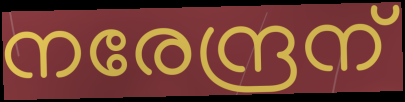
നരേന്ദ്രന്